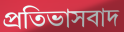
প্রতিভাসবাদ